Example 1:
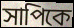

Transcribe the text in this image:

সাপিকে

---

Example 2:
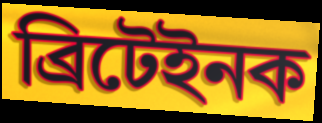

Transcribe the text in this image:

ব্ৰিটেইনক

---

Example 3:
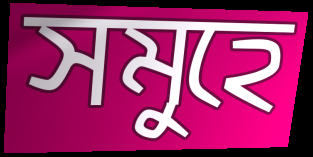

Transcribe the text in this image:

সমুহে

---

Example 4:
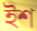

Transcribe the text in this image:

ইশ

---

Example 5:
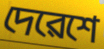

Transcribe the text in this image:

দেৱেশে